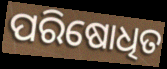
ପରିଷୋଧିତ